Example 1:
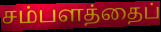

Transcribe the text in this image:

சம்பளத்தைப்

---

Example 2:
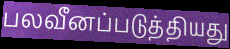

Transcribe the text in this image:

பலவீனப்படுத்தியது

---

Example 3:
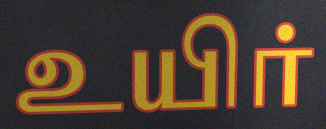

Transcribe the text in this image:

உயிர்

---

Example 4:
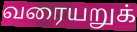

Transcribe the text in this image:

வரையறுக்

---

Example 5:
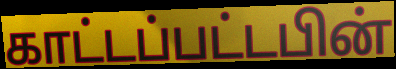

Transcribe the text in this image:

காட்டப்பட்டபின்